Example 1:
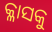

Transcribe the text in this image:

କ୍ଳାସକୁ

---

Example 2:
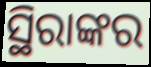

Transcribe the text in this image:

ସ୍ଥିରାଙ୍କର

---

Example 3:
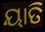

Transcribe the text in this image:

ୟାତି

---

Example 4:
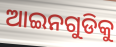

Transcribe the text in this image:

ଆଇନଗୁଡିକୁ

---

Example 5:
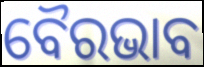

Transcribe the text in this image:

ବୈରଭାବ